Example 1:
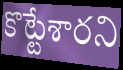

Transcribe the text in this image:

కొట్టేశారని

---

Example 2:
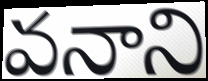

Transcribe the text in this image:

వనాని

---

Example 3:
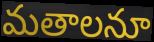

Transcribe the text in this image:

మతాలనూ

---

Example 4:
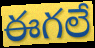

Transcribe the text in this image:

ఈగలే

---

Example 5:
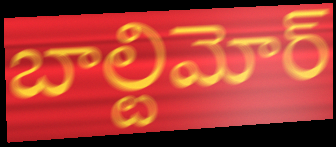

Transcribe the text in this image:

బాల్టిమోర్